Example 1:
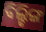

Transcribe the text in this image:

ବିଲ୍ଡିଙ୍ଗ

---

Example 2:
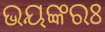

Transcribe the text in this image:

ଭୟଙ୍କରଃ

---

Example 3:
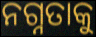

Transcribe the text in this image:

ନଗ୍ନତାକୁ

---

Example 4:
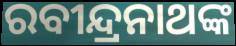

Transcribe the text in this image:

ରବୀନ୍ଦ୍ରନାଥଙ୍କ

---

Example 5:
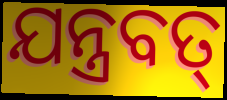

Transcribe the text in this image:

ଯନ୍ତ୍ରବତ୍